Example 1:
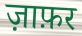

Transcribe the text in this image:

ज़ाफ़र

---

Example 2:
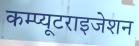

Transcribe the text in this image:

कम्प्यूटराइजेशन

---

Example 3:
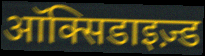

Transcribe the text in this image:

ऑक्सिडाइज़्ड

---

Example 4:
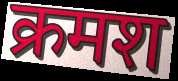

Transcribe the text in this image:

क्रमश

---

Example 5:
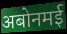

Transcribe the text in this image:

अबोनमई